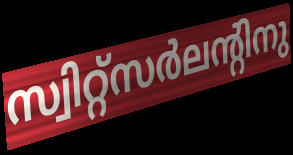
സ്വിറ്റ്സർലന്റിനു